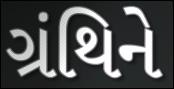
ગ્રંથિને